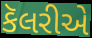
કૅલરીએ